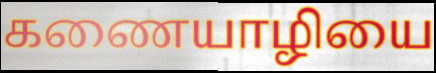
கணையாழியை